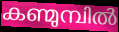
കണ്മുമ്പിൽ